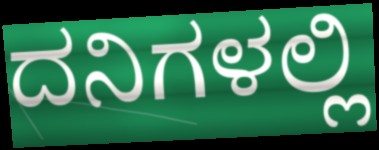
ದನಿಗಳಲ್ಲಿ